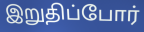
இறுதிப்போர்